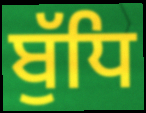
ਬੁੱਧਿ